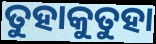
ତୁହାକୁତୁହା